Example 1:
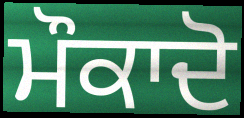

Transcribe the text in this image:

ਮੌਕਾਦੋ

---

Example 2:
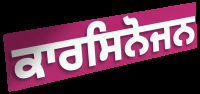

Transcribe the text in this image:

ਕਾਰਸਿਨੋਜਨ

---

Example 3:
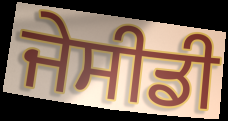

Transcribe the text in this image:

ਜੇਸੀਡੀ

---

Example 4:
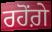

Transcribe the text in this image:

ਰਹੋਂਗ਼ੇ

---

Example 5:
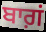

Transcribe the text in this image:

ਬਾਗ਼ਂ